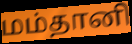
மம்தானி